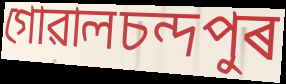
গোৱালচন্দপুৰ